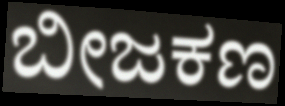
ಬೀಜಕಣ